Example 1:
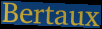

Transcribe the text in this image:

Bertaux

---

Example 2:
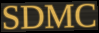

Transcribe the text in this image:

SDMC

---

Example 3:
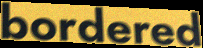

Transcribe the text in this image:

bordered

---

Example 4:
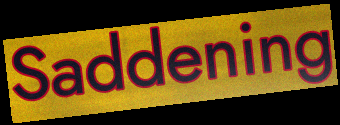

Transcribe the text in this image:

Saddening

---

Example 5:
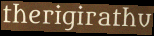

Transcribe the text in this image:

therigirathu